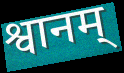
श्वानम्